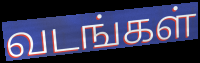
வடங்கள்